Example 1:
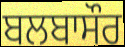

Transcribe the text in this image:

ਬਲਬਾਸੌਰ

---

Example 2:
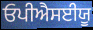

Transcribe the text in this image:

ਓਪੀਐਸਈਯੂ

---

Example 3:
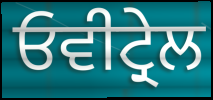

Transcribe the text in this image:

ਓਵੀਟ੍ਰੇਲ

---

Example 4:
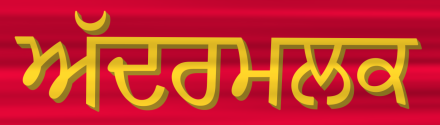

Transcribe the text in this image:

ਅੱਦਰਮਲਕ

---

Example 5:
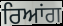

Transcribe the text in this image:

ਰਿਆਂਗ